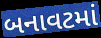
બનાવટમાં